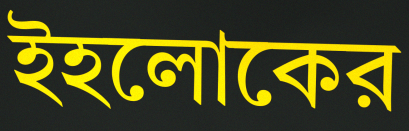
ইহলোকের